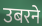
उबरने